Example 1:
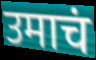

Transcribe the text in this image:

उमाचं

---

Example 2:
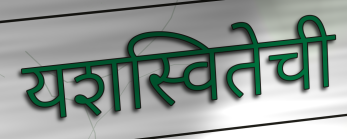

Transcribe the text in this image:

यशस्वितेची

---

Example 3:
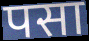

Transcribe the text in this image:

पसा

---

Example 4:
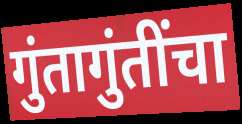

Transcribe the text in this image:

गुंतागुंतींचा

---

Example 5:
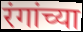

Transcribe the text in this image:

रंगांच्या